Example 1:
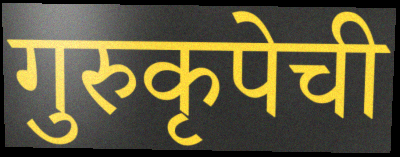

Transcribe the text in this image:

गुरुकृपेची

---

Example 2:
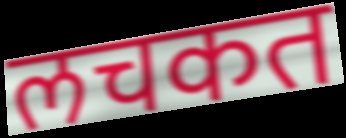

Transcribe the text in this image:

लचकत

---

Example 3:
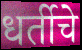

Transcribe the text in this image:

धर्तीचे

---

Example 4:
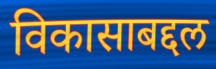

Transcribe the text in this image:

विकासाबद्दल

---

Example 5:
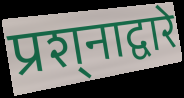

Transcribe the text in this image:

प्रश्नाद्वारे